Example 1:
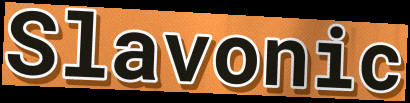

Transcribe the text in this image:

Slavonic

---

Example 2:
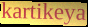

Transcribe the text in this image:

kartikeya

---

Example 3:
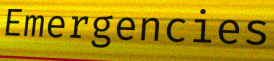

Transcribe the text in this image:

Emergencies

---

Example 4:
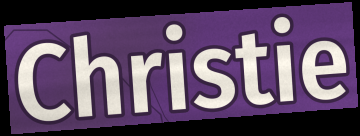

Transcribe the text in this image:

Christie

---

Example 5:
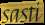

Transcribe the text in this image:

sasti